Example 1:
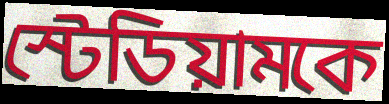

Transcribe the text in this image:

স্টেডিয়ামকে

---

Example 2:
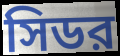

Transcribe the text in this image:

সিডর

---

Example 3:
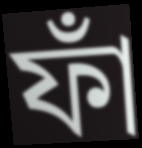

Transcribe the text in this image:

ফাঁ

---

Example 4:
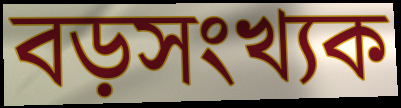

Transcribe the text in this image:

বড়সংখ্যক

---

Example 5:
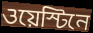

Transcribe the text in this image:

ওয়েস্টিনে